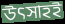
উৎসাহই